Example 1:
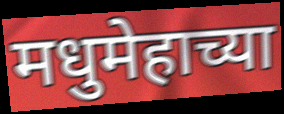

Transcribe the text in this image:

मधुमेहाच्या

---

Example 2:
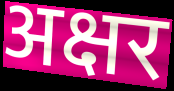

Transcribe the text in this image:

अक्षर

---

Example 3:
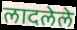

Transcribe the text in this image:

लादलेले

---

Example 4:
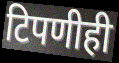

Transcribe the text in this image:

टिपणीही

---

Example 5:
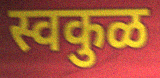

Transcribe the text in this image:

स्वकुळ